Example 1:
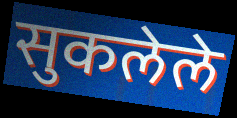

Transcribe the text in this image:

सुकलेले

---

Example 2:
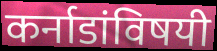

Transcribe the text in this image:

कर्नाडांविषयी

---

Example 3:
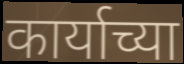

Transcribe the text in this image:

कार्याच्या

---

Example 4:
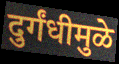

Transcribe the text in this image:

दुर्गंधीमुळे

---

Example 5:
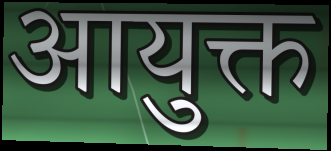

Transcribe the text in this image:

आयुक्त